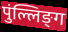
पुंल्लिङ्ग